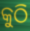
କୁଠି